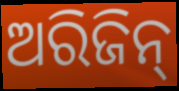
ଅରିଜିନ୍